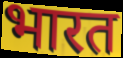
भारत